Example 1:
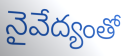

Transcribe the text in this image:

నైవేద్యంతో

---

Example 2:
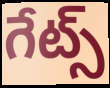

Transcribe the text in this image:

గేట్స్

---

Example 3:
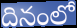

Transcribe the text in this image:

దినంలో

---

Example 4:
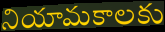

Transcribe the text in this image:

నియామకాలకు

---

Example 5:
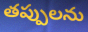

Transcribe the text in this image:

తప్పులను